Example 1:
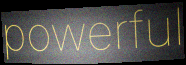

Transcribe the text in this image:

powerful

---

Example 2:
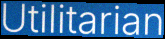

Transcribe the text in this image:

Utilitarian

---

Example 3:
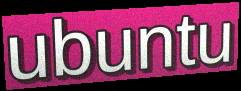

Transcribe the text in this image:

ubuntu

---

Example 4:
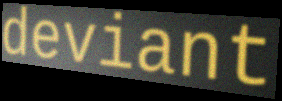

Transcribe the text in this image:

deviant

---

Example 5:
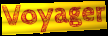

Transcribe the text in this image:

Voyager